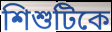
শিশুটিকে